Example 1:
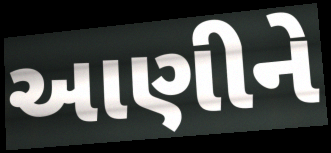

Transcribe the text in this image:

આણીને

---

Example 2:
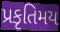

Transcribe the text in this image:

પ્રકૃતિમય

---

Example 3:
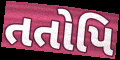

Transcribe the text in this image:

તતોપિ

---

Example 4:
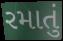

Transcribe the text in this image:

રમાતું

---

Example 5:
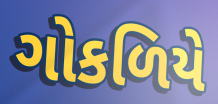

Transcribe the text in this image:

ગોકળિયે